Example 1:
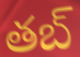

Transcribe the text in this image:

తబ్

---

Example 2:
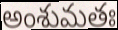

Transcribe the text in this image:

అంశుమతః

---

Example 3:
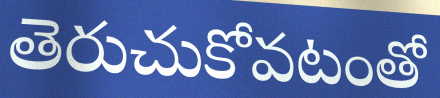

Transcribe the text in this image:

తెరుచుకోవటంతో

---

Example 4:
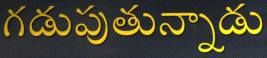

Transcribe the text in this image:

గడుపుతున్నాడు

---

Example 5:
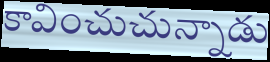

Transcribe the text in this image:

కావించుచున్నాడు